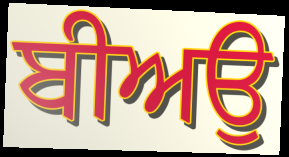
ਬੀਅਉ